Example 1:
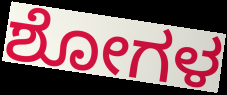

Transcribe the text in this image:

ಶೋಗಳ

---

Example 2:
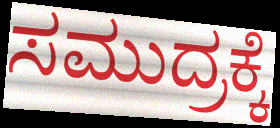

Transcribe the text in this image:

ಸಮುದ್ರಕ್ಕೆ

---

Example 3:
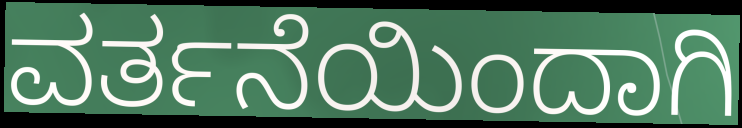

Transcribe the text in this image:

ವರ್ತನೆಯಿಂದಾಗಿ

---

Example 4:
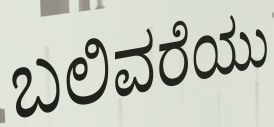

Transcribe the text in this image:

ಬಲಿವರೆಯು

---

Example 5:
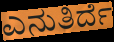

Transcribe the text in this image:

ಎನುತಿರ್ದೆ